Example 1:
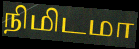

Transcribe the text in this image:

நிமிடமா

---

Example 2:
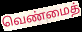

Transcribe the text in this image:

வெண்மைத்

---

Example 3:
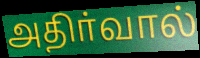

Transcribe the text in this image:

அதிர்வால்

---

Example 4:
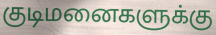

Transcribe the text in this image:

குடிமனைகளுக்கு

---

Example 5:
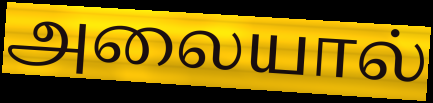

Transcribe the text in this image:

அலையால்